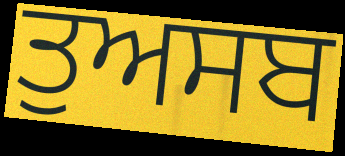
ਤੁਅਸਬ